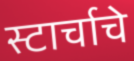
स्टार्चाचे